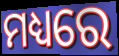
ମଧ୍ଯରେ